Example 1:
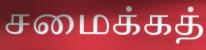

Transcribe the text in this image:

சமைக்கத்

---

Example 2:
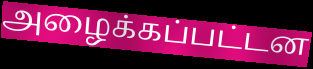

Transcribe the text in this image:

அழைக்கப்பட்டன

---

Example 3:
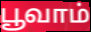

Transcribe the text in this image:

பூவாம்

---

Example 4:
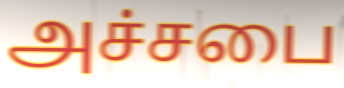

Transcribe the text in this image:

அச்சபை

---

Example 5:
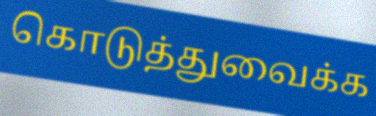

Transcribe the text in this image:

கொடுத்துவைக்க